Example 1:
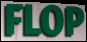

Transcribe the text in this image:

FLOP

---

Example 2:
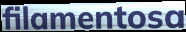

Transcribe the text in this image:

filamentosa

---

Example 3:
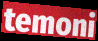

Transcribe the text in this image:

temoni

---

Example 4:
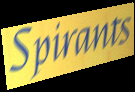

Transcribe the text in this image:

Spirants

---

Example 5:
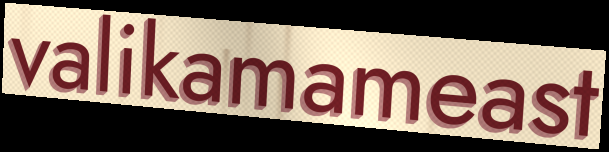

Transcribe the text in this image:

valikamameast